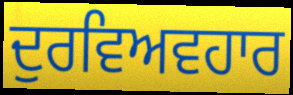
ਦੁਰਵਿਅਵਹਾਰ